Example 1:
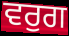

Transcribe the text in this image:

ਵਰੁਗ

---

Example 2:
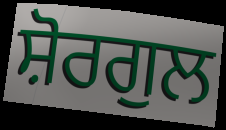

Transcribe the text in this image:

ਸ਼ੋਰਗੁਲ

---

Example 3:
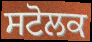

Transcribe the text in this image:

ਸਟੋਲਕ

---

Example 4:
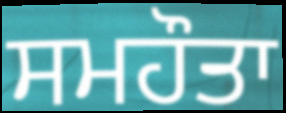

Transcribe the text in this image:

ਸਮਹੌਤਾ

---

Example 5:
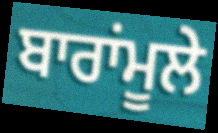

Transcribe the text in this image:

ਬਾਰਾਂਮੂਲੇ